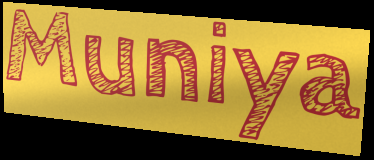
Muniya